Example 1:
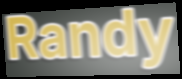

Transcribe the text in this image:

Randy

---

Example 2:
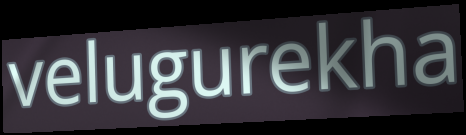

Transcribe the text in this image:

velugurekha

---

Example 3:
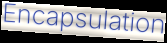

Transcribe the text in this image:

Encapsulation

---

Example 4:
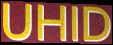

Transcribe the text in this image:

UHID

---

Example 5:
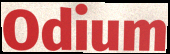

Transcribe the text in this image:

Odium